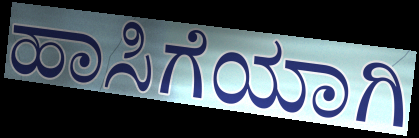
ಹಾಸಿಗೆಯಾಗಿ